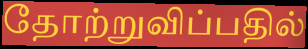
தோற்றுவிப்பதில்